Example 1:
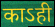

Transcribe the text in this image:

काऽही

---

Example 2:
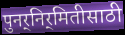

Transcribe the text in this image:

पुनर्निर्मितीसाठी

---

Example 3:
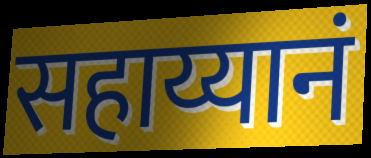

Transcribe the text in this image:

सहाय्यानं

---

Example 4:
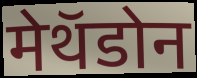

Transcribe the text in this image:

मेथॅडोन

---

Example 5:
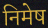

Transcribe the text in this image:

निमेष